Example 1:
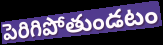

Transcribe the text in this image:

పెరిగిపోతుండటం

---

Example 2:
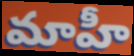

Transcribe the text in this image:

మాహీ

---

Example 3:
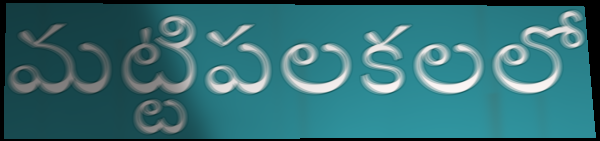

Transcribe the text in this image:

మట్టిపలకలలో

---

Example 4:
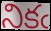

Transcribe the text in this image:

నికఁ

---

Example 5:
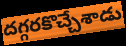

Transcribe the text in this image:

దగ్గరకొచ్చేశాడు